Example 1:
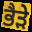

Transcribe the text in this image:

ਭੈਡ਼ੇ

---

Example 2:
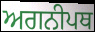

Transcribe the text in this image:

ਅਗਨੀਪਥ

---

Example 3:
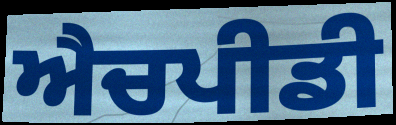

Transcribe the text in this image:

ਐਚਪੀਡੀ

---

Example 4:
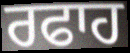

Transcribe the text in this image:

ਰਫਾਹ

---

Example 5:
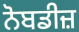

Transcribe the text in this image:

ਨੋਬਡੀਜ਼